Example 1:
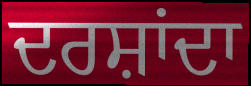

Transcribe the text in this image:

ਦਰਸ਼ਾਂਦਾ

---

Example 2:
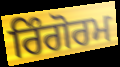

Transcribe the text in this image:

ਰਿੰਗੋਰਮ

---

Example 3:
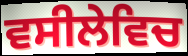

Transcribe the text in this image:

ਵਸੀਲੇਵਿਚ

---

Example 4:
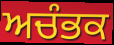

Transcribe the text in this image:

ਅਚੰਭਕ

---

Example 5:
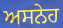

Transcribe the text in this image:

ਅਸਨੇਹ